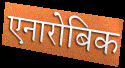
एनारोबिक